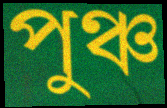
পুঞ্চ